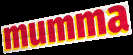
mumma